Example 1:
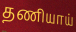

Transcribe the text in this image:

தணியாய்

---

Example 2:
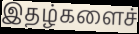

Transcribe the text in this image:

இதழ்களைச்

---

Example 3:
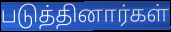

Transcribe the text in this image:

படுத்தினார்கள்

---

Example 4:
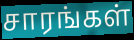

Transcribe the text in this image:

சாரங்கள்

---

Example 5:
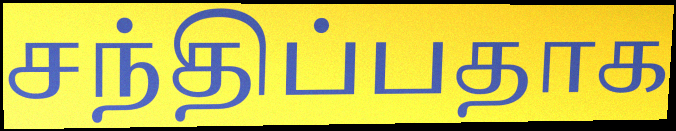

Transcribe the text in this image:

சந்திப்பதாக